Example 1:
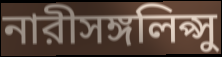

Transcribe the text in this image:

নারীসঙ্গলিপ্সু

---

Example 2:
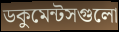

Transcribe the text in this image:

ডকুমেন্টসগুলো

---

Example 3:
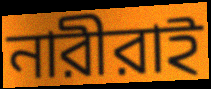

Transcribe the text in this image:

নারীরাই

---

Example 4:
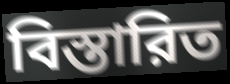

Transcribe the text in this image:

বিস্তারিত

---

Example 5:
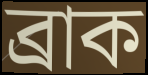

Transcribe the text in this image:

ব্রাক